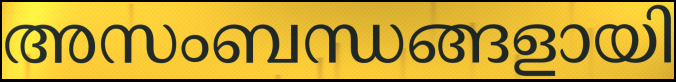
അസംബന്ധങ്ങളായി